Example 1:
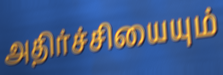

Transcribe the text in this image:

அதிர்ச்சியையும்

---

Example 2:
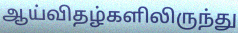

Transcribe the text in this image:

ஆய்விதழ்களிலிருந்து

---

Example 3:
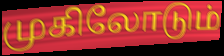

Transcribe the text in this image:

முகிலோடும்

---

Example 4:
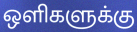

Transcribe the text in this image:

ஒளிகளுக்கு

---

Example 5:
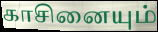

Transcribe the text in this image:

காசினையும்